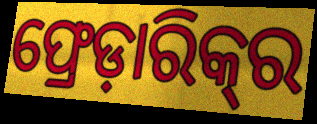
ଫ୍ରେଡ଼ାରିକ୍‍ର